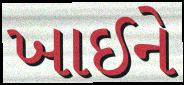
ખાઈને